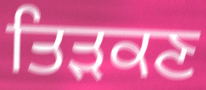
ਤਿੜਕਣ